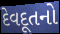
દેવદૂતનો